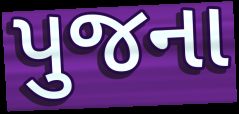
પુજના